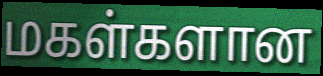
மகள்களான